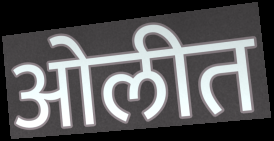
ओलीत